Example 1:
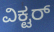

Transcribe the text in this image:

ವಿಕ್ಟರ್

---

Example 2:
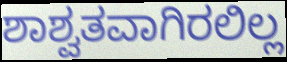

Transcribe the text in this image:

ಶಾಶ್ವತವಾಗಿರಲಿಲ್ಲ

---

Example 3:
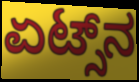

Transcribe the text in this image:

ಏಟ್ಸ್‌ನ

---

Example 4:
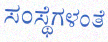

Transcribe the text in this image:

ಸಂಸ್ಥೆಗಳಂತೆ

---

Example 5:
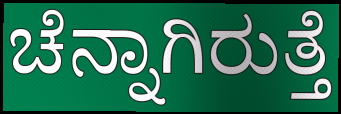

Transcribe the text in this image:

ಚೆನ್ನಾಗಿರುತ್ತೆ